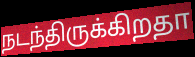
நடந்திருக்கிறதா